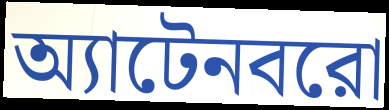
অ্যাটেনবরো